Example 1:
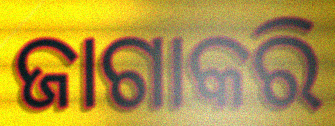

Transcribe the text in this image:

ଜାଗାକରି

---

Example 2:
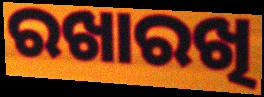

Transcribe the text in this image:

ରଖାରଖି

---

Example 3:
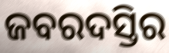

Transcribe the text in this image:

ଜବରଦସ୍ତିର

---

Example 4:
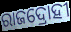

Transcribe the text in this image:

ରାଜଦ୍ରୋହୀ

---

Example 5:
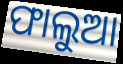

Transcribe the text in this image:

ଫାଲୁଆ